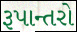
રૂપાન્તરો